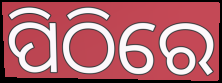
ପିଠିରେ